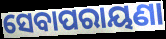
ସେବାପରାୟଣା